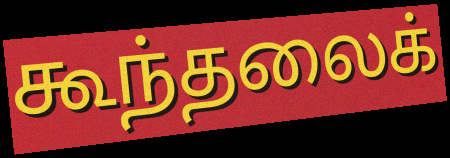
கூந்தலைக்